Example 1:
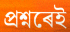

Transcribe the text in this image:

প্ৰশ্নৰেই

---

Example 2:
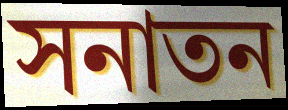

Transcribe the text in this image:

সনাতন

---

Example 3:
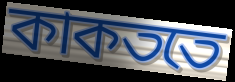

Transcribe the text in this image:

কাকততে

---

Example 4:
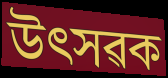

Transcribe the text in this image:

উৎসৱক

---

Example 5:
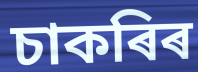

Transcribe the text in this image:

চাকৰিৰ